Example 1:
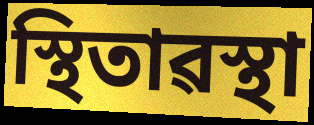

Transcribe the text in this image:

স্থিতাৱস্থা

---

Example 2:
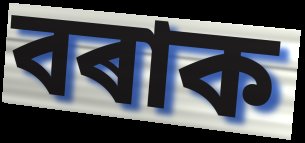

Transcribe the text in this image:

বৰাক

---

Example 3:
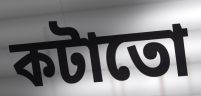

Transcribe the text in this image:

কটাতো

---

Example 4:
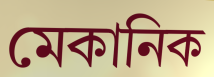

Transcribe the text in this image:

মেকানিক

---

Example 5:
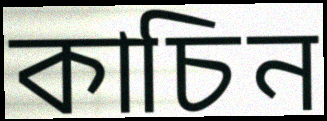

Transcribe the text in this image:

কাচিন